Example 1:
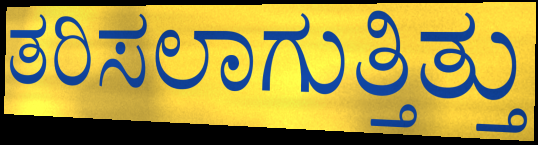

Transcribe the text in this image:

ತರಿಸಲಾಗುತ್ತಿತ್ತು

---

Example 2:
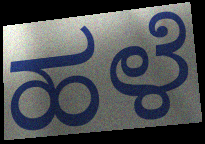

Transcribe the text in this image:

ಹಳೆ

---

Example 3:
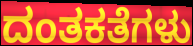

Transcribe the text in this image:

ದಂತಕತೆಗಳು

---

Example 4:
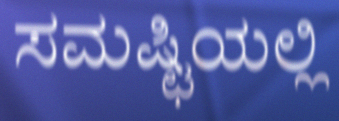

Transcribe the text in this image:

ಸಮಷ್ಟಿಯಲ್ಲಿ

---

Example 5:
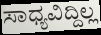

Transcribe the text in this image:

ಸಾಧ್ಯವಿದ್ದಿಲ್ಲ